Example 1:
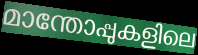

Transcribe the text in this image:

മാന്തോപ്പുകളിലെ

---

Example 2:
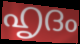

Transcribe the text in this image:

ഹൃദം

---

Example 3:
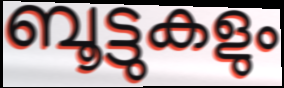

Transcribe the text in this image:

ബൂട്ടുകളും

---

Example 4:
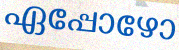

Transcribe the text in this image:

ഏപ്പോഴോ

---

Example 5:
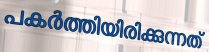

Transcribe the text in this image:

പകർത്തിയിരിക്കുന്നത്